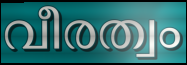
വീരത്വം